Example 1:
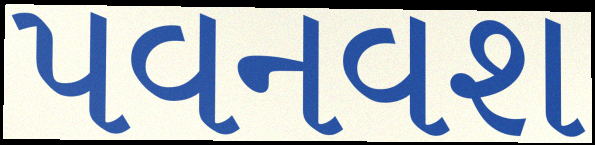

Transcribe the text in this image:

પવનવશ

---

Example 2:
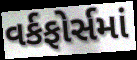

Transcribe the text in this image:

વર્કફોર્સમાં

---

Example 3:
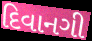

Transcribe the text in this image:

દિવાનગી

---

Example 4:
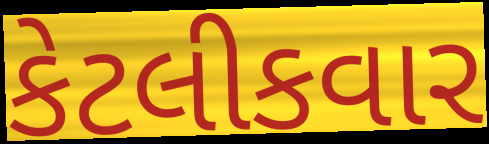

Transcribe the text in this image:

કેટલીકવાર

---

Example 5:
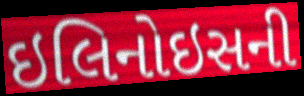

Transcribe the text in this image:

ઇલિનોઇસની